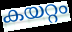
കയറ്റം